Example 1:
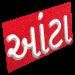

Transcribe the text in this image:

આંટા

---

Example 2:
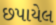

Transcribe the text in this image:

છપાયેલ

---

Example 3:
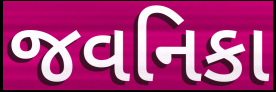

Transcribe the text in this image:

જવનિકા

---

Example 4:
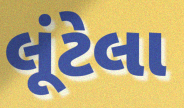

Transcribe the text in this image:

લૂંટેલા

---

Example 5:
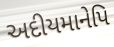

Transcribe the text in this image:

અદીયમાનેપિ